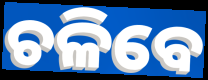
ଚଳିବେ